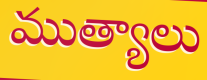
ముత్యాలు